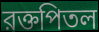
রক্তপিতল